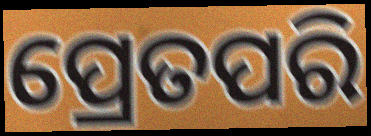
ପ୍ରେତପରି